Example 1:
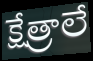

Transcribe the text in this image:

క్షేత్రాలే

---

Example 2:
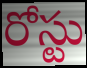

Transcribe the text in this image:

రోస్టు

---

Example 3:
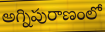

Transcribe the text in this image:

అగ్నిపురాణంలో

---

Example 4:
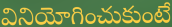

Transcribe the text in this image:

వినియోగించుకుంటే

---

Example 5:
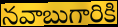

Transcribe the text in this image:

నవాబుగారికి